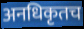
अनधिकृतच